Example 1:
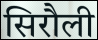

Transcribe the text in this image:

सिरौली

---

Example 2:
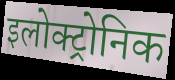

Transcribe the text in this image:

इलोक्ट्रोनिक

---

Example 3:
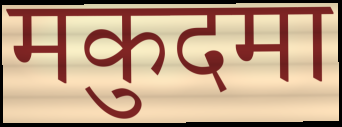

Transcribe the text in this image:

मकुदमा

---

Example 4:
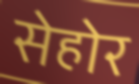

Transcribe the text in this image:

सेहोर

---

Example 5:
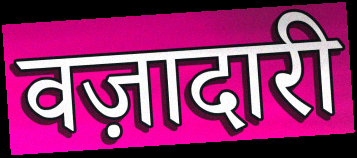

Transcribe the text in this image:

वज़ादारी